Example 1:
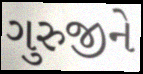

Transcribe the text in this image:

ગુરુજીને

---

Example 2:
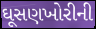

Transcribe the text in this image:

ઘૂસણખોરીની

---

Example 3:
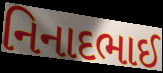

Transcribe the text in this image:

નિનાદભાઈ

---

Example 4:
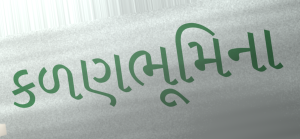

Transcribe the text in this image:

કળણભૂમિના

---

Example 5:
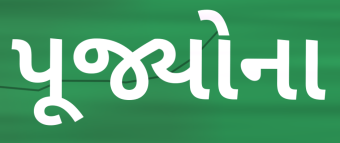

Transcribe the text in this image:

પૂજ્યોના